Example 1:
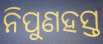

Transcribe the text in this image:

ନିପୁଣହସ୍ତ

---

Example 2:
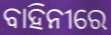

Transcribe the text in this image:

ବାହିନୀରେ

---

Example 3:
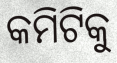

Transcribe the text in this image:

କମିଟିକୁ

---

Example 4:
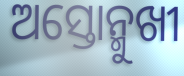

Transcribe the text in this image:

ଅସ୍ତୋନ୍ମୁଖୀ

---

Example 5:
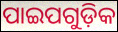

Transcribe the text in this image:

ପାଇପଗୁଡ଼ିକ